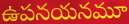
ఉపనయనమూ